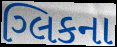
ગ્લિકના